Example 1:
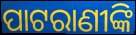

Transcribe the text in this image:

ପାଟରାଣୀଙ୍କି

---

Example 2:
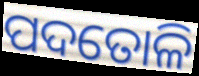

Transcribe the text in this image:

ପଦତୋଳି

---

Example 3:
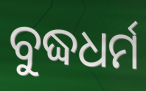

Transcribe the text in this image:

ବୁଦ୍ଧଧର୍ମ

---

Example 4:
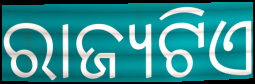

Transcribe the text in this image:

ରାଜ୍ୟଟିଏ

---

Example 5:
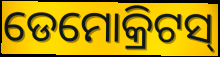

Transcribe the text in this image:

ଡେମୋକ୍ରିଟସ୍